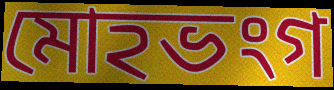
মোহভংগ